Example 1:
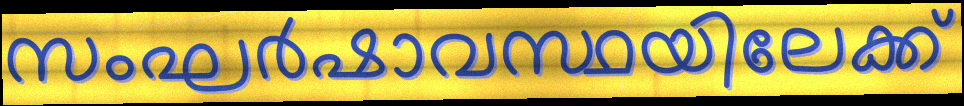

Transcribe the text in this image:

സംഘർഷാവസ്ഥയിലേക്ക്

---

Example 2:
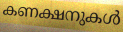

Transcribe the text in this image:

കണക്ഷനുകൾ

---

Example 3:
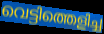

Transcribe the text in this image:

വെട്ടിത്തെളിച്ച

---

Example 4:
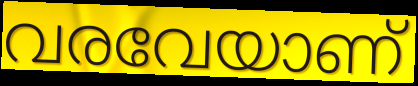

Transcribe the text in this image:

വരവേയാണ്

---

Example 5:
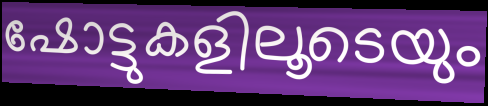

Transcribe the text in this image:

ഷോട്ടുകളിലൂടെയും